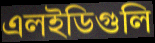
এলইডিগুলি